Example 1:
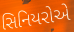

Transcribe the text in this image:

સિનિયરોએ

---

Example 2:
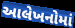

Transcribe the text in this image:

આલેખનોમાં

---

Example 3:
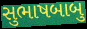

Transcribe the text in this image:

સુભાષબાબુ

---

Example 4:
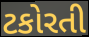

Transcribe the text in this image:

ટકોરતી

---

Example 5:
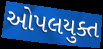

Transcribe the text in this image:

ઓપલયુક્ત